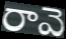
రావె